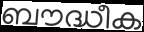
ബൗദ്ധീക